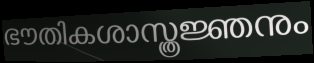
ഭൗതികശാസ്ത്രജ്ഞനും